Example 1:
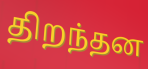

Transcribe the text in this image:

திறந்தன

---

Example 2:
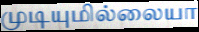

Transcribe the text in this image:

முடியுமில்லையா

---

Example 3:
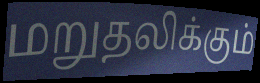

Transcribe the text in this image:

மறுதலிக்கும்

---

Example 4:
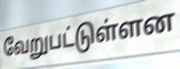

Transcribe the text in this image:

வேறுபட்டுள்ளன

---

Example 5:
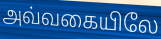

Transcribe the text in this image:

அவ்வகையிலே